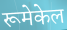
रूमेकेल